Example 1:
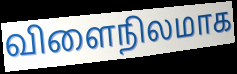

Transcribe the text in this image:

விளைநிலமாக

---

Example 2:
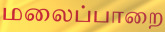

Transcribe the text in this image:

மலைப்பாறை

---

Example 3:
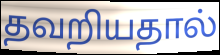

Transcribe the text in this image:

தவறியதால்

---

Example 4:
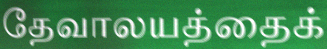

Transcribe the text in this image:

தேவாலயத்தைக்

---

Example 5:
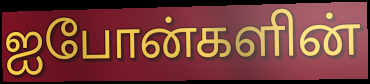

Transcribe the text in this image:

ஐபோன்களின்